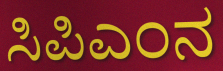
ಸಿಪಿಎಂನ